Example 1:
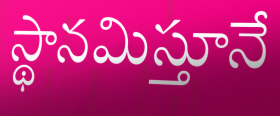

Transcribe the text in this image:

స్థానమిస్తూనే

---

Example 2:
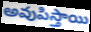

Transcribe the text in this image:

అవుపిస్తాయి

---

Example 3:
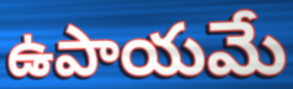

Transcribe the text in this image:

ఉపాయమే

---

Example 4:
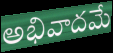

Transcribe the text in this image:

అభివాదమే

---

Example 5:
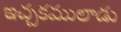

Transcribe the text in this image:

ఇచ్చకములాడు